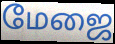
மேஜை